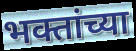
भक्तांच्या